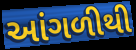
આંગળીથી